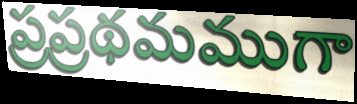
ప్రప్రథమముగా